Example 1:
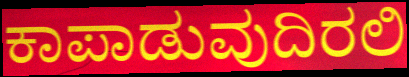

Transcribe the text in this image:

ಕಾಪಾಡುವುದಿರಲಿ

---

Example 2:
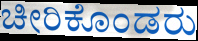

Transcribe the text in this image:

ಚೀರಿಕೊಂಡರು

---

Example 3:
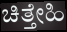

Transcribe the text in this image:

ಚಿತ್ತೇಹಿ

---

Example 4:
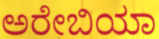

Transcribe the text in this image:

ಅರೇಬಿಯಾ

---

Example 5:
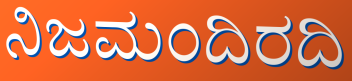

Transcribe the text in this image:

ನಿಜಮಂದಿರದಿ